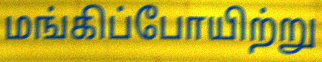
மங்கிப்போயிற்று